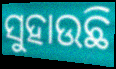
ସୁହାଉଛି